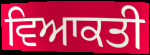
ਵਿਆਕਤੀ